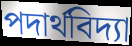
পদার্থবিদ্যা